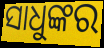
ସାଧୁଙ୍କର